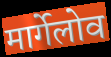
मार्गेलोव